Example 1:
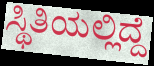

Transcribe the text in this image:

ಸ್ಥಿತಿಯಲ್ಲಿದ್ದೆ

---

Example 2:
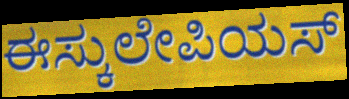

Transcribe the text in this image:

ಈಸ್ಕುಲೇಪಿಯಸ್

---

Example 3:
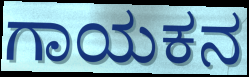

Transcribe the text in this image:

ಗಾಯಕನ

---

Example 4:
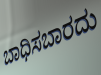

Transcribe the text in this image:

ಬಾಧಿಸಬಾರದು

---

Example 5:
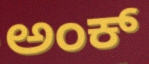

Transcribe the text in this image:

ಅಂಕ್